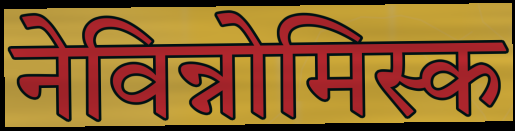
नेविन्नोमिस्क